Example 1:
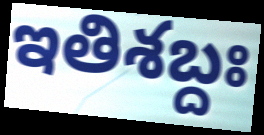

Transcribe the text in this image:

ఇతిశబ్దః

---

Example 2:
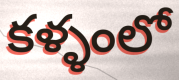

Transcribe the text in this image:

కళ్ళంలో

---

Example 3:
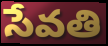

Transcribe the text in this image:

సేవతి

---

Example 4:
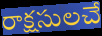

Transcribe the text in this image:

రాక్షసులచే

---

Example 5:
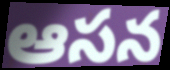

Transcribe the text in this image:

ఆసన